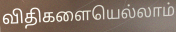
விதிகளையெல்லாம்